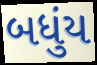
બધુંય